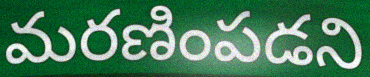
మరణింపడని